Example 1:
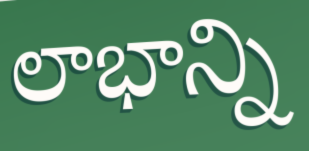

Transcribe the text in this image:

లాభాన్ని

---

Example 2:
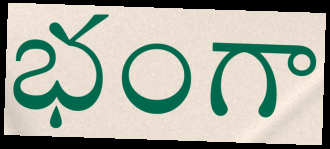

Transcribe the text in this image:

భంగా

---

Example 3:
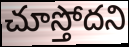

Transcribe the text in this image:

చూస్తోదని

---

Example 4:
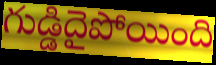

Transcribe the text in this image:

గుడ్డిదైపోయింది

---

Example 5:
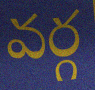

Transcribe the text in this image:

వర్గ